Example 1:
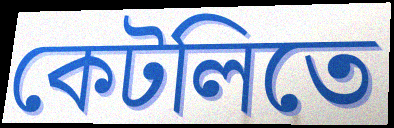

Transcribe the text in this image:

কেটলিতে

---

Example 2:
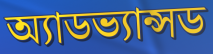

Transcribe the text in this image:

অ্যাডভ্যান্সড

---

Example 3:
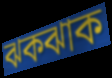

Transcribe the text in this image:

ঝকঝাক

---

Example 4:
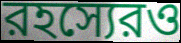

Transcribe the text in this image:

রহস্যেরও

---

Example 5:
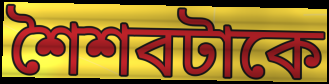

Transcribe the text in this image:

শৈশবটাকে